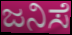
ಜನಿಸೆ